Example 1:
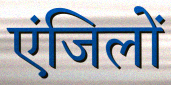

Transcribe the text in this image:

एंजिलों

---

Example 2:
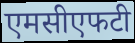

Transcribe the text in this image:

एमसीएफटी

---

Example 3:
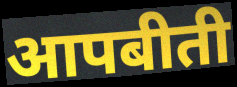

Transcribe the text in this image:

आपबीती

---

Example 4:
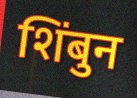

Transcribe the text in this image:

शिंबुन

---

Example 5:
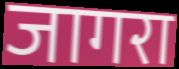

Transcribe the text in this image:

जागरा